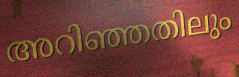
അറിഞ്ഞതിലും